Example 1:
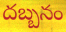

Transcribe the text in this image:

దబ్బనం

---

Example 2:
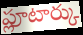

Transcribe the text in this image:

ప్లూటార్కు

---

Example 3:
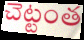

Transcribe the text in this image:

చెట్టంత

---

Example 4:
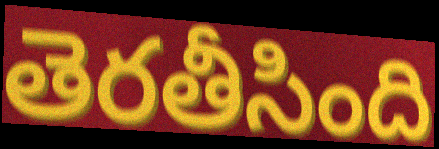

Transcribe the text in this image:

తెరతీసింది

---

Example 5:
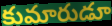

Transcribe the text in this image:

కుమారుడూ